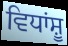
ਵਿਧਾਂਸ਼ੂ